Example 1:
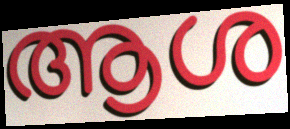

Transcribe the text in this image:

ആശ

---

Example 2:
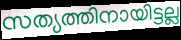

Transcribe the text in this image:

സത്യത്തിനായിട്ടല്ല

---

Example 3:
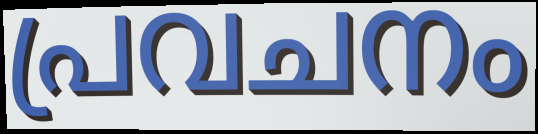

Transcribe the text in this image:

പ്രവചനം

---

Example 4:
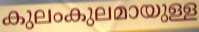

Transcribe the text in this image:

കുലംകുലമായുള്ള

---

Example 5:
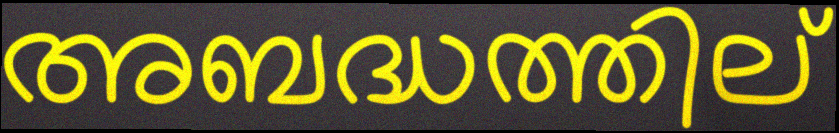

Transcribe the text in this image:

അബദ്ധത്തില്